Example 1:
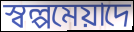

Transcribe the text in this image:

স্বল্পমেয়াদে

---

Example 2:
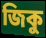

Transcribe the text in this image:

জিকু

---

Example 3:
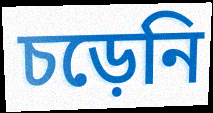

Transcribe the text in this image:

চড়েনি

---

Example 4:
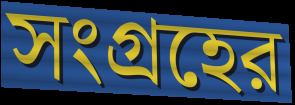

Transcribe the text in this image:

সংগ্রহের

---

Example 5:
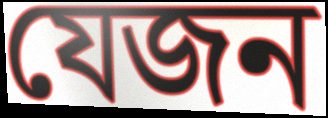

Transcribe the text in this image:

যেজন